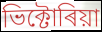
ভিক্টোৰিয়া